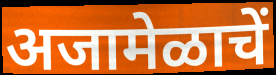
अजामेळाचें